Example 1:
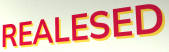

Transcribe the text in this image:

REALESED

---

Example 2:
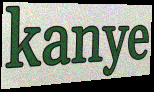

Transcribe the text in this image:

kanye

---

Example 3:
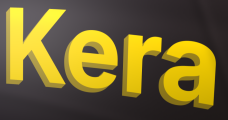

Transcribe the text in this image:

Kera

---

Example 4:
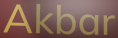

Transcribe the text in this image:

Akbar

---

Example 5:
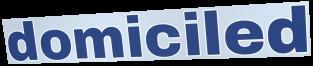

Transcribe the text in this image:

domiciled